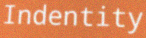
Indentity